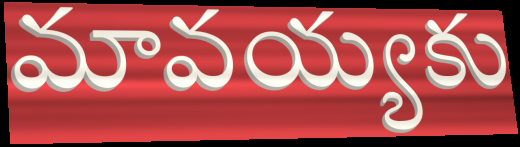
మావయ్యకు